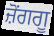
ਜ਼ੋਂਗਗੂ